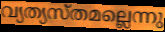
വ്യത്യസ്തമല്ലെന്നു